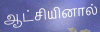
ஆட்சியினால்